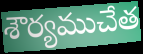
శౌర్యముచేత